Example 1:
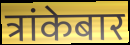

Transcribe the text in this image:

त्रांकेबार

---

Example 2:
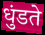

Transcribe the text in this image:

धुंडते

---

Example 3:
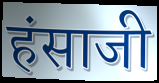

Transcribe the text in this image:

हंसाजी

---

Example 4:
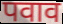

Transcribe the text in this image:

पवाव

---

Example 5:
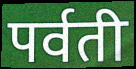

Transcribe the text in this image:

पर्वती